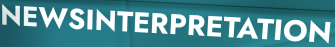
NEWSINTERPRETATION